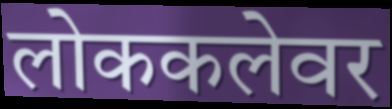
लोककलेवर